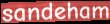
sandeham